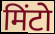
मिंटो